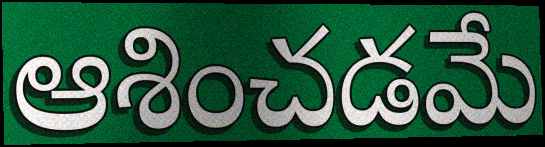
ఆశించడమే